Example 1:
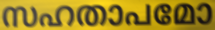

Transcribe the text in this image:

സഹതാപമോ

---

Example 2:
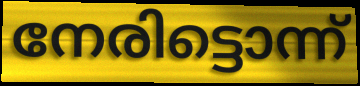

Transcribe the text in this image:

നേരിട്ടൊന്ന്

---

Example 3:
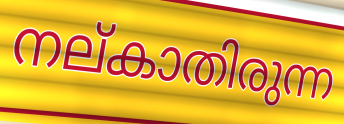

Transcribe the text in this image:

നല്കാതിരുന്ന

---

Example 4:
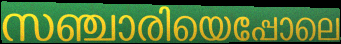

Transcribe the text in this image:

സഞ്ചാരിയെപ്പോലെ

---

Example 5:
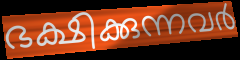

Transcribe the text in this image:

ഭക്ഷിക്കുന്നവർ